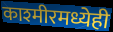
काश्‍मीरमध्येही